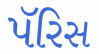
પૅરિસ